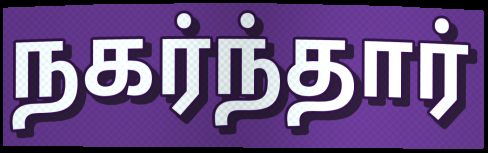
நகர்ந்தார்